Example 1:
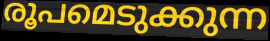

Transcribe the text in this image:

രൂപമെടുക്കുന്ന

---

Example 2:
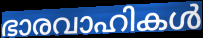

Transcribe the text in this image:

ഭാരവാഹികൾ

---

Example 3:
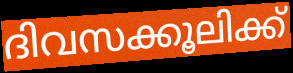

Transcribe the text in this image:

ദിവസക്കൂലിക്ക്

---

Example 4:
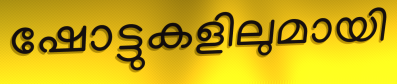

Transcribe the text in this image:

ഷോട്ടുകളിലുമായി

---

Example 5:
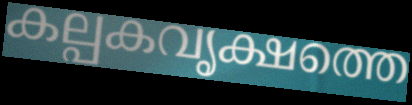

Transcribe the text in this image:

കല്പകവൃക്ഷത്തെ